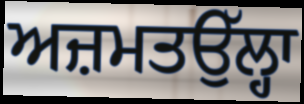
ਅਜ਼ਮਤਉੱਲ੍ਹਾ